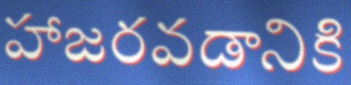
హాజరవడానికి